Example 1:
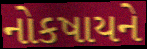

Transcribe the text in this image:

નોકષાયને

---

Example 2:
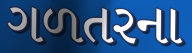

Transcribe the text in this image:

ગળતરના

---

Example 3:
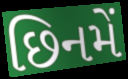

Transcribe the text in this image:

છિનમેં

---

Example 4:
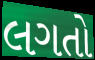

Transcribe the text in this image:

લગતો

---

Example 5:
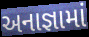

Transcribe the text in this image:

અનાજ્ઞામાં